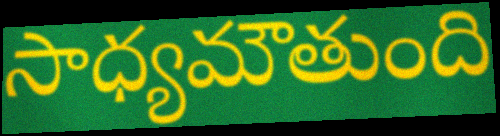
సాధ్యమౌతుంది